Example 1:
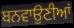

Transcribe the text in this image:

ਬਨਵਾਉਣੀਆਂ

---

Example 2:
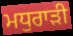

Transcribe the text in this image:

ਮਧੁਰਾੜੀ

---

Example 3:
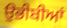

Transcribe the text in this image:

ਉਭੀਬੀਆਂ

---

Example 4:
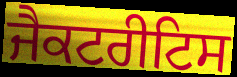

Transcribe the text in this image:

ਜੈਕਟਰੀਟਿਸ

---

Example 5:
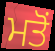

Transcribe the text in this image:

ਮਤੋਂ